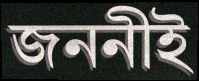
জননীই